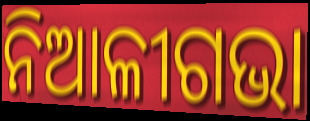
ନିଆଳୀଗଭା